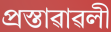
প্ৰস্তাৱাৱলী